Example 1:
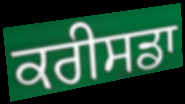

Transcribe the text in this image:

ਕਰੀਸਡਾ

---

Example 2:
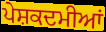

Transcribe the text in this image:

ਪੇਸ਼ਕਦਮੀਆਂ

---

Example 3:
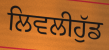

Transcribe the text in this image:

ਲਿਵਲੀਹੁੱਡ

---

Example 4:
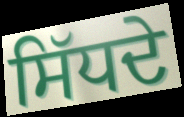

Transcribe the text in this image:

ਸਿੱਧਦੇ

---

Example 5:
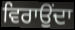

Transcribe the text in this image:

ਵਿਰਾਉਂਦਾ